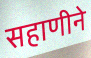
सहाणीने